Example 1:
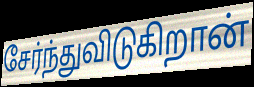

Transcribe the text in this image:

சேர்ந்துவிடுகிறான்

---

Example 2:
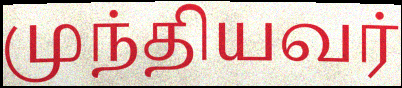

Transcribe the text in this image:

முந்தியவர்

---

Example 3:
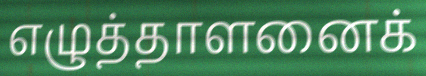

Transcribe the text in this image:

எழுத்தாளனைக்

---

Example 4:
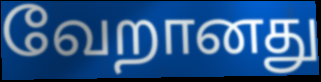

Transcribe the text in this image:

வேறானது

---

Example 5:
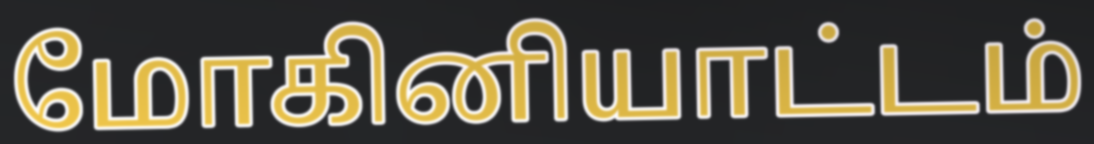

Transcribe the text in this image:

மோகினியாட்டம்